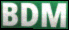
BDM